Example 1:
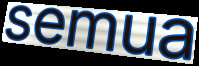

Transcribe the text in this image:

semua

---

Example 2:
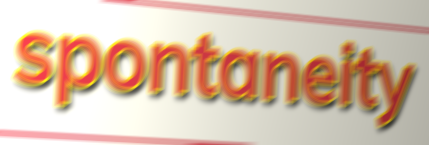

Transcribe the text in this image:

spontaneity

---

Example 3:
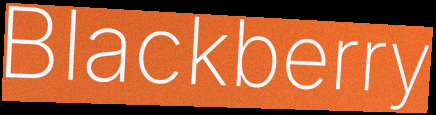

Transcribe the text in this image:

Blackberry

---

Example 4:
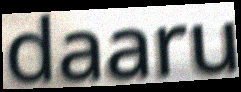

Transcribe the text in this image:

daaru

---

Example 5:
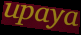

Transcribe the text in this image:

upaya